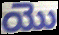
యొ